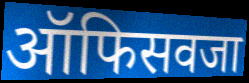
ऑफिसवजा